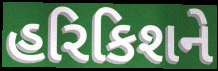
હરિકિશને